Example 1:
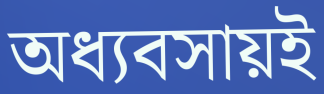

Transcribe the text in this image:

অধ্যবসায়ই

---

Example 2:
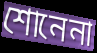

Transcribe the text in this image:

শোনেনা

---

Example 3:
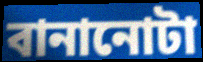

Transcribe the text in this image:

বানানোটা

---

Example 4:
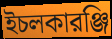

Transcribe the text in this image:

ইচলকারঞ্জি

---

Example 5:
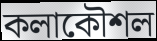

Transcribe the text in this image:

কলাকৌশল